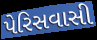
પેરિસવાસી